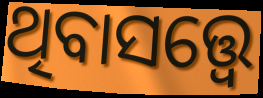
ଥିବାସତ୍ତ୍ଵେ